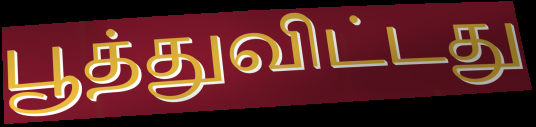
பூத்துவிட்டது